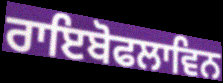
ਰਾਇਬੋਫਲਾਵਿਨ